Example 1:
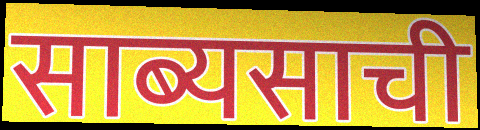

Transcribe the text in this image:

साब्यसाची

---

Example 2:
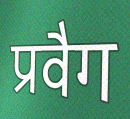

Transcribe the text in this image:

प्रवैग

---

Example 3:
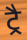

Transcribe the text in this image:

ट्रै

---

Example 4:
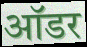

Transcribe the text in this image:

ऑडर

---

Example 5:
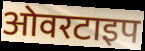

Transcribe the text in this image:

ओवरटाइप